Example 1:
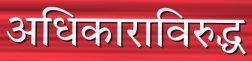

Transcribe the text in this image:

अधिकाराविरुद्ध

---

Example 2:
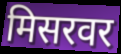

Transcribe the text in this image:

मिसरवर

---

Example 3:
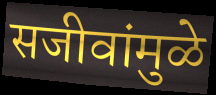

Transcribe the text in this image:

सजीवांमुळे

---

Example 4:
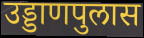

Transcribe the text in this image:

उड्डाणपुलास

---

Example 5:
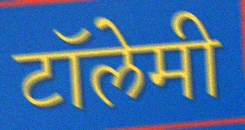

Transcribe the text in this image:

टॉलेमी